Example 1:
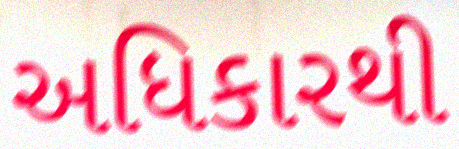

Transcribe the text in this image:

અધિકારથી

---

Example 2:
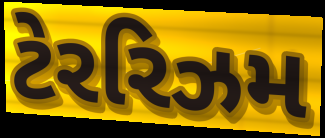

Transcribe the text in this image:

ટેરરિઝમ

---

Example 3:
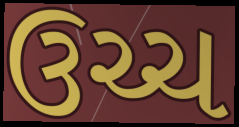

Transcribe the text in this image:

ઉચ્ચ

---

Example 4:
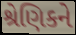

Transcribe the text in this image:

શ્રેણિકને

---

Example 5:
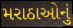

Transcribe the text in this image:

મરાઠાઓનું